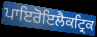
ਪਾਇਰੋਇਲੈਕਟ੍ਰਿਕ